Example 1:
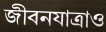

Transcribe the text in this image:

জীবনযাত্রাও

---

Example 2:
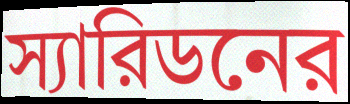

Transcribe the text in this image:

স্যারিডনের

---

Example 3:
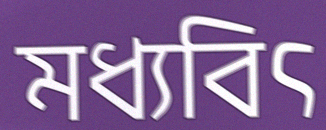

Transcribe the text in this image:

মধ্যবিৎ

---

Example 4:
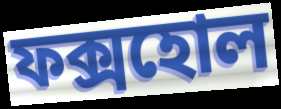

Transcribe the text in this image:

ফক্সহোল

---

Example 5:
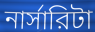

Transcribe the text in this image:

নার্সারিটা